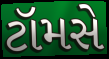
ટૉમસે